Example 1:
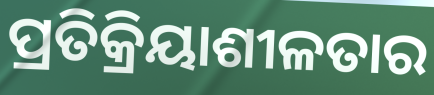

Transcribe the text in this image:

ପ୍ରତିକ୍ରିୟାଶୀଳତାର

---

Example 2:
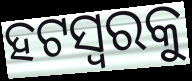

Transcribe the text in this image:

ହଟସ୍ଵରକୁ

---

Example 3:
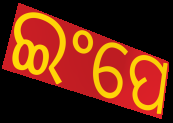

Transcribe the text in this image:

ଇଂପେ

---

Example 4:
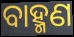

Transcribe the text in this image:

ବାହ୍ମଣ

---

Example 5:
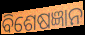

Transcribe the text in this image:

ବିଶେଷଜ୍ଞାନ